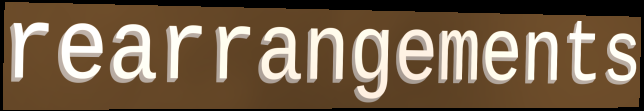
rearrangements